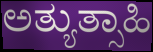
ಅತ್ಯುತ್ಸಾಹಿ